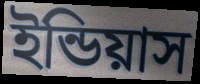
ইন্ডিয়াস